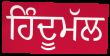
ਹਿੰਦੂਮੱਲ